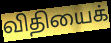
விதியைக்